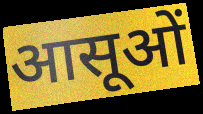
आसूओं